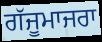
ਗੱਜੂਮਾਜਰਾ